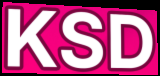
KSD